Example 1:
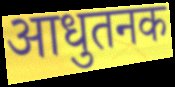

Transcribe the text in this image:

आधुतनक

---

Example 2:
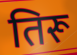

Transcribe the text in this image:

तिरू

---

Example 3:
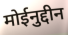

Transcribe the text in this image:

मोईनुद्दीन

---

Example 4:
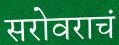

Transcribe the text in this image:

सरोवराचं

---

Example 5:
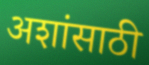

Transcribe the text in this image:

अशांसाठी